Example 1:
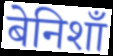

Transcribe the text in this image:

बेनिशाँ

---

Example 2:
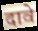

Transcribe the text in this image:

दावे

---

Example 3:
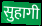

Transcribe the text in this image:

सुहागी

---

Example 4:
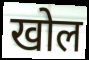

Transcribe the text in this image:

खोल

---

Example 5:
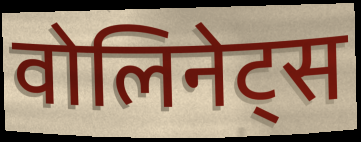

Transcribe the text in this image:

वोलिनेट्स